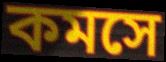
কমসে